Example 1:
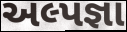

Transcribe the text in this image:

અલ્પજ્ઞા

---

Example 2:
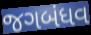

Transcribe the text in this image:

જગબંધવ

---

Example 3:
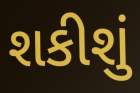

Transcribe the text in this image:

શકીશું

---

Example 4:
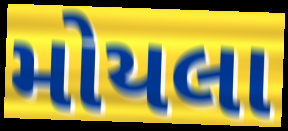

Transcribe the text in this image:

મોયલા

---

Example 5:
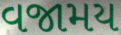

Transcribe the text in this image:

વજામય